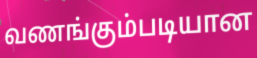
வணங்கும்படியான